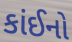
કાંઈનો